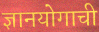
ज्ञानयोगाची